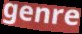
genre